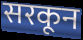
सरकून